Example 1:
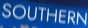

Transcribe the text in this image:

SOUTHERN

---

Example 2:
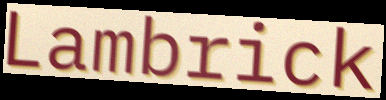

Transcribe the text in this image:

Lambrick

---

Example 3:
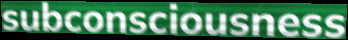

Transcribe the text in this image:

subconsciousness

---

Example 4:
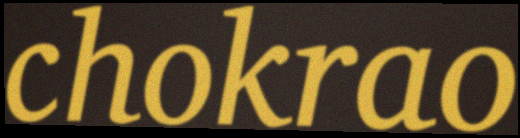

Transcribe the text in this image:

chokrao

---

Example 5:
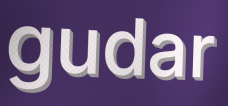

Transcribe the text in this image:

gudar